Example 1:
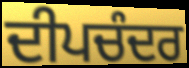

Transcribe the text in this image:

ਦੀਪਚੰਦਰ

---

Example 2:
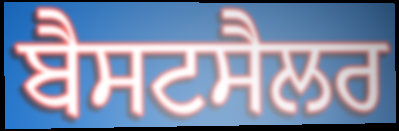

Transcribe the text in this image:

ਬੈਸਟਸੈਲਰ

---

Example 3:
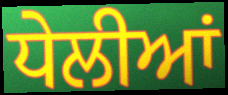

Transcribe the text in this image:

ਧੇਲੀਆਂ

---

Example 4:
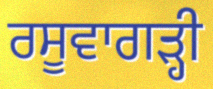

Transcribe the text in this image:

ਰਸੂਵਾਗੜ੍ਹੀ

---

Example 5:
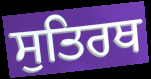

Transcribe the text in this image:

ਸੁਤਿਰਥ